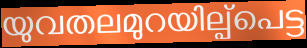
യുവതലമുറയില്പ്പെട്ട